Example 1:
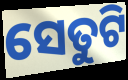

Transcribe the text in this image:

ସେତୁଟି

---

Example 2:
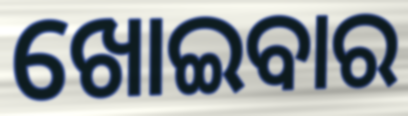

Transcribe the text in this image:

ଖୋଇବାର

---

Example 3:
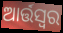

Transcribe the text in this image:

ଆର୍ତ୍ତସ୍ୱର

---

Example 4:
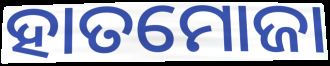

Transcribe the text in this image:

ହାତମୋଜା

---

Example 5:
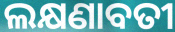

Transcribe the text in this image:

ଲକ୍ଷଣାବତୀ